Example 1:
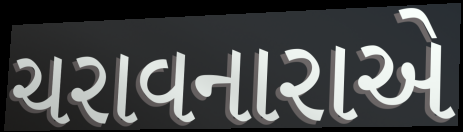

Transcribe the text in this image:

ચરાવનારાએ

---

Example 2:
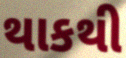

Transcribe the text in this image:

થાકથી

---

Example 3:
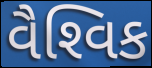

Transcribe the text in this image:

વૈશ્‍વિક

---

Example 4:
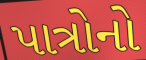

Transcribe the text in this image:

પાત્રોનો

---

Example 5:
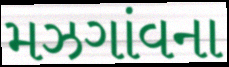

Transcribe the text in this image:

મઝગાંવના